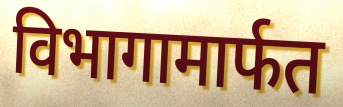
विभागामार्फत